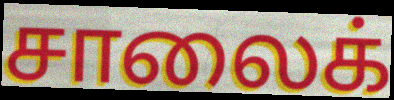
சாலைக்